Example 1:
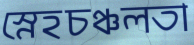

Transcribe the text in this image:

স্নেহচঞ্চলতা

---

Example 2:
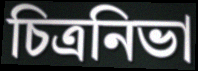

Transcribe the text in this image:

চিত্রনিভা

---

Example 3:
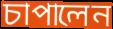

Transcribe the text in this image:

চাপালেন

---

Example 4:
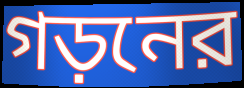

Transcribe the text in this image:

গড়নের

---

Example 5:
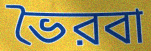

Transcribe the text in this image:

ভৈরবা